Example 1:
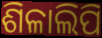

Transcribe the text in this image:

ଶିଳାଲିପି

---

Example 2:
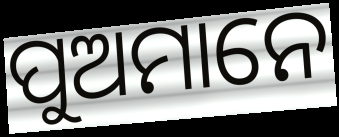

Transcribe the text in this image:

ପୁଅମାନେ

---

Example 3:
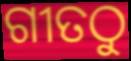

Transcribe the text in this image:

ଗୀତଠୁ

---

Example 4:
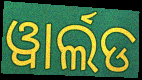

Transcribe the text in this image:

ୱାର୍ଲଡ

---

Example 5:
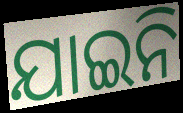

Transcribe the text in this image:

ଯାଇନି